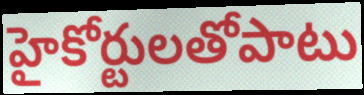
హైకోర్టులతోపాటు